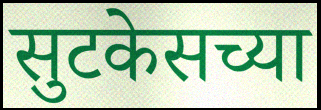
सुटकेसच्या